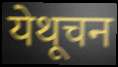
येथूचन